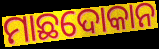
ମାଛଦୋକାନ